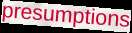
presumptions